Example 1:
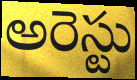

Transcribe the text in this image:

అరెస్టు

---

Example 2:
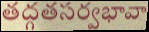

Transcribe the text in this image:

తద్గతసర్వభావా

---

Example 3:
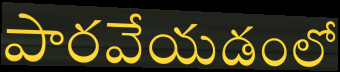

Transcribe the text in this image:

పారవేయడంలో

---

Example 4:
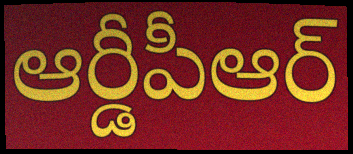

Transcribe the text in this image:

ఆర్డీపీఆర్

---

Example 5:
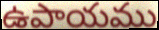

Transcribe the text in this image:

ఉపాయము